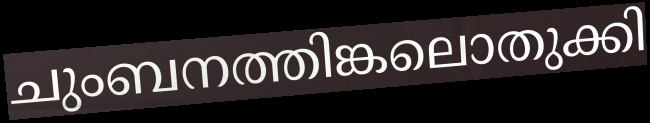
ചുംബനത്തിങ്കലൊതുക്കി